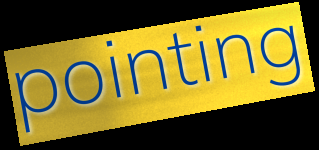
pointing